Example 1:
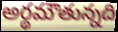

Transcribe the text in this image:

అర్థమౌతున్నది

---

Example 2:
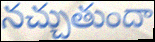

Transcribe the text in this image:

నచ్చుతుందా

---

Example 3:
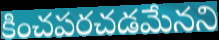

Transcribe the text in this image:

కించపరచడమేనని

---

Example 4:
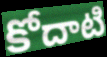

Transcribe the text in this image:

కోదాటి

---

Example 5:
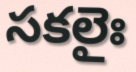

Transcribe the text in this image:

సకలైః